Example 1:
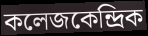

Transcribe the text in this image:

কলেজকেন্দ্রিক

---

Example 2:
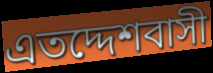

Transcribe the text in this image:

এতদ্দেশবাসী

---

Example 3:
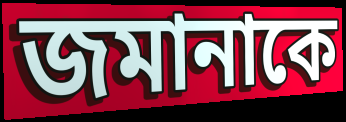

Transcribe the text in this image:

জমানাকে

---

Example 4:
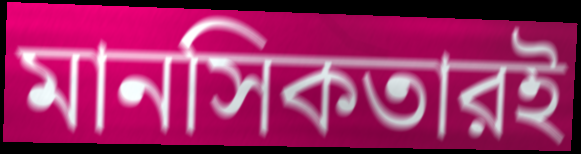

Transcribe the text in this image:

মানসিকতারই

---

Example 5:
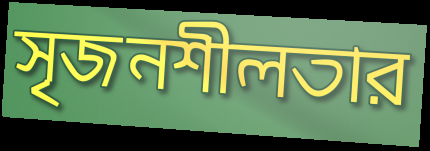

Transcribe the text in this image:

সৃজনশীলতার